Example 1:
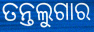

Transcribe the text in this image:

ତନ୍ତଲୁଗାର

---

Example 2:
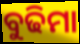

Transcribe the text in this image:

ବୁଢିମା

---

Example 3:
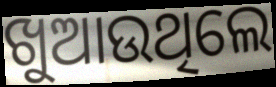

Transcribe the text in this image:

ଖୁଆଉଥିଲେ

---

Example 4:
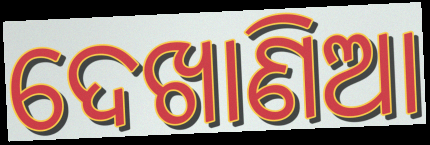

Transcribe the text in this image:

ଦେଖାଣିଆ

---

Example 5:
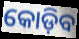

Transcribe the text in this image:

କୋଡ଼ିବ